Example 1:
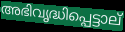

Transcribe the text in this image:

അഭിവൃദ്ധിപ്പെട്ടാല്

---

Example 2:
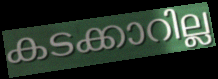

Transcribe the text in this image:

കടക്കാറില്ല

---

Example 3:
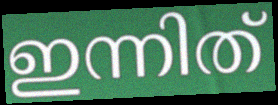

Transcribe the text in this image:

ഇന്നിത്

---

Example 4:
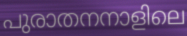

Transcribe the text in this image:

പുരാതനനാളിലെ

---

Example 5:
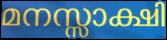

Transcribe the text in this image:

മനസ്സാക്ഷി